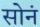
सोनं